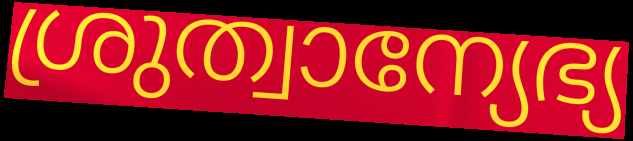
ശ്രുത്വാന്യേഭ്യ